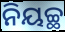
ନିୟଚ୍ଛ